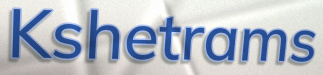
Kshetrams